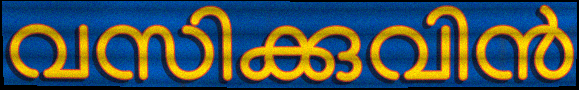
വസിക്കുവിൻ